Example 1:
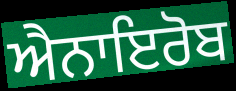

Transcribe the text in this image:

ਐਨਾਇਰੋਬ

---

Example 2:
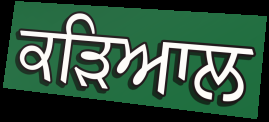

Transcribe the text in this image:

ਕੜਿਆਲ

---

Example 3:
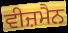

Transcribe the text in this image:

ਵੀਜ਼ਮੈਨ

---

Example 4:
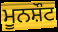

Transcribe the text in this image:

ਮੂਨਸ਼ੌਟ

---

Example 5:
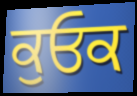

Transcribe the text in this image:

ਕੁਓਕ